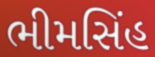
ભીમસિંહ